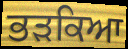
ਭੜਕਿਆ